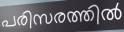
പരിസരത്തിൽ